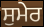
ਸੁਮੇਰ